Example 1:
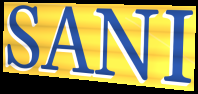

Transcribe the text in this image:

SANI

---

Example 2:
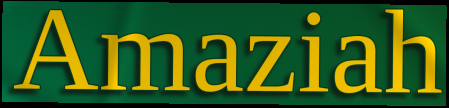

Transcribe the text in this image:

Amaziah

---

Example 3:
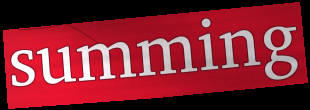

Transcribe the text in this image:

summing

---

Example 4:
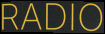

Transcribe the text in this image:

RADIO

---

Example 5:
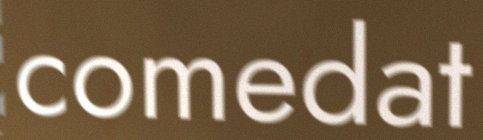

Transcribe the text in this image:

comedat